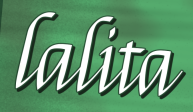
lalita